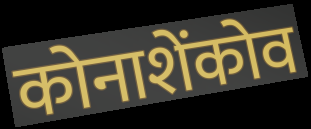
कोनाशेंकोव